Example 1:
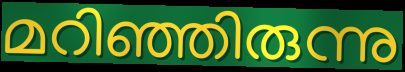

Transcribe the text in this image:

മറിഞ്ഞിരുന്നു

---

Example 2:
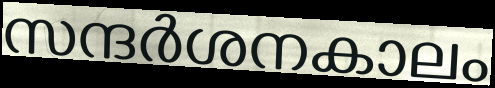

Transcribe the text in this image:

സന്ദർശനകാലം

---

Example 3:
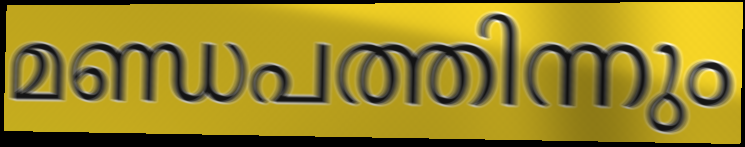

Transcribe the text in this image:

മണ്ഡപത്തിന്നും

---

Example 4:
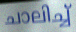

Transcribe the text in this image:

ചാലിച്ച്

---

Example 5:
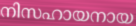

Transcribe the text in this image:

നിസഹായനായ